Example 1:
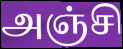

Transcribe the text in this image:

அஞ்சி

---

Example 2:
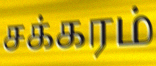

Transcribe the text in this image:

சக்கரம்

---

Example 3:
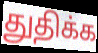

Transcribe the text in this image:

துதிக்க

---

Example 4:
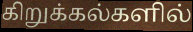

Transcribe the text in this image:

கிறுக்கல்களில்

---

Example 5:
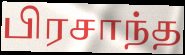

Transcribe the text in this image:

பிரசாந்த